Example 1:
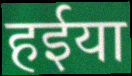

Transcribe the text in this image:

हईया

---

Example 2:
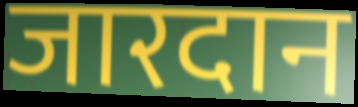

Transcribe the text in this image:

जारदान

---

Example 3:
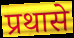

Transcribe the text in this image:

प्रथासे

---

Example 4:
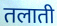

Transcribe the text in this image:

तलाती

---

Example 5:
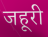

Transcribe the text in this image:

जहूरी